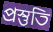
প্রস্তুতি